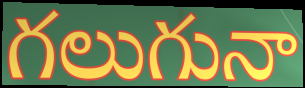
గలుగునా